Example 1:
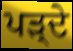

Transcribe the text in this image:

ਪੜ੍ਦੇ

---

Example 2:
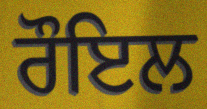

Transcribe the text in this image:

ਰੌਇਲ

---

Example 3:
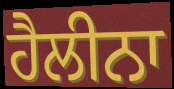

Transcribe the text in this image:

ਹੈਲੀਨਾ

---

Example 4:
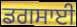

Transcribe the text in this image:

ਡਗਸਾਈ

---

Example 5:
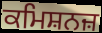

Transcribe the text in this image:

ਕਮਿਸ਼ਨਜ਼